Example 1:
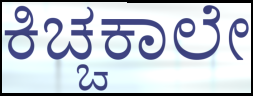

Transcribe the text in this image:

ಕಿಚ್ಚಕಾಲೇ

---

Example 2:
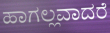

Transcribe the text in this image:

ಹಾಗಲ್ಲವಾದರೆ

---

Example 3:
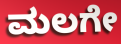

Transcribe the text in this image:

ಮಲಗೇ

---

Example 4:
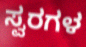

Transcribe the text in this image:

ಸ್ವರಗಳ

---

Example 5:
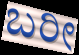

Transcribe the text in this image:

ಬರೀ